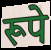
रूपे